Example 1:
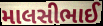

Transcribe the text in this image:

માલસીભાઈ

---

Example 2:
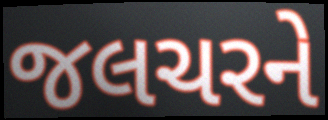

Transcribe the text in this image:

જલચરને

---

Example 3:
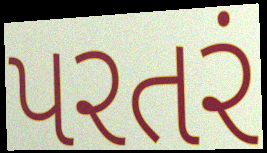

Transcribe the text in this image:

પરતરં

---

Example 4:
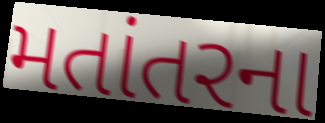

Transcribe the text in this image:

મતાંતરના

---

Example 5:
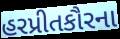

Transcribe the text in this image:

હરપ્રીતકૌરના